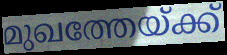
മുഖത്തേയ്ക്ക്